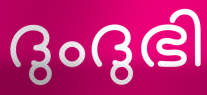
ദുംദുഭി